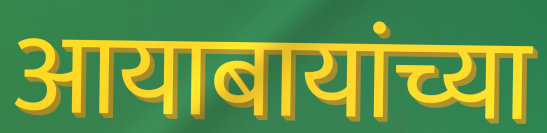
आयाबायांच्या